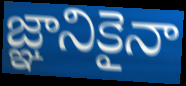
జ్ఞానికైనా